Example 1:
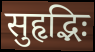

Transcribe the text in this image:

सुहृद्भिः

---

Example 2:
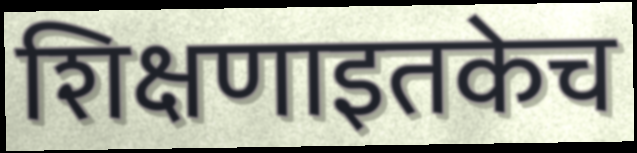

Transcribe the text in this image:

शिक्षणाइतकेच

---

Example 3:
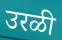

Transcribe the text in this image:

उरळी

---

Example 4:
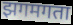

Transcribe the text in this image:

झगमगता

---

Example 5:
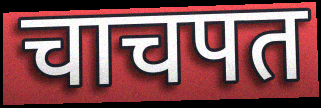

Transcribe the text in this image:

चाचपत